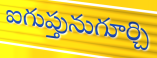
ఐగుప్తునుగూర్చి